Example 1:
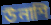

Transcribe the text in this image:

উনাশি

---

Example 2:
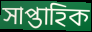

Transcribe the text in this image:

সাপ্তাহিক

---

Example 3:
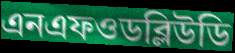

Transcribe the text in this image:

এনএফওডব্লিউডি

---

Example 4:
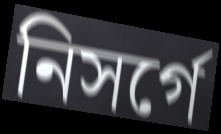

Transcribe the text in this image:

নিসর্গে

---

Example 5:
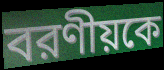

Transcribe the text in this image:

বরণীয়কে